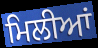
ਮਿਲੀਆਂ